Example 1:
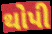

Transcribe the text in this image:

થોપી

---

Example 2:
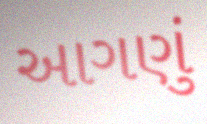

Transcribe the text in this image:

આગણું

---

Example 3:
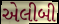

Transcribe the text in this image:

એલીબી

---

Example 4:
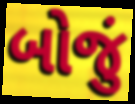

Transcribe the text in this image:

બોજું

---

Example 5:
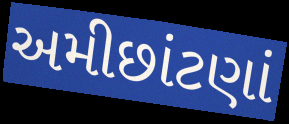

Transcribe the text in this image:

અમીછાંટણાં